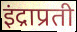
इंद्राप्रती